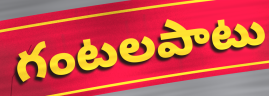
గంటలపాటు